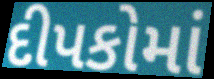
દીપકોમાં